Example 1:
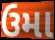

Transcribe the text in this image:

ઉમા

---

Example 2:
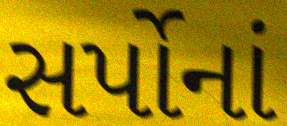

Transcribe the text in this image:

સર્પોનાં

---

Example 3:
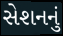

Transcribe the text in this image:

સેશનનું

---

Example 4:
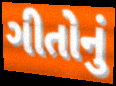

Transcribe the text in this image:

ગીતોનું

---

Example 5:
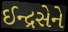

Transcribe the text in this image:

ઈન્દ્રસેને